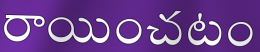
రాయించటం